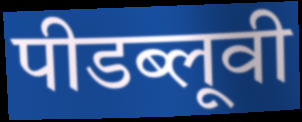
पीडब्लूवी